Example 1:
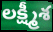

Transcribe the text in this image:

లక్ష్మీశ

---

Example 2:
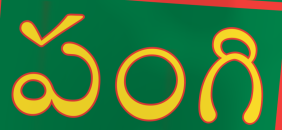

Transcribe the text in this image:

పంగి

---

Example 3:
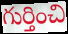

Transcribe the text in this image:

గుర్తించి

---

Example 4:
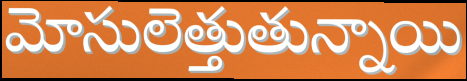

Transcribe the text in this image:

మోసులెత్తుతున్నాయి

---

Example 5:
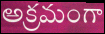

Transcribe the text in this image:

అక్రమంగా